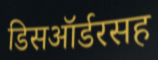
डिसऑर्डरसह